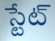
స్టేట్